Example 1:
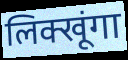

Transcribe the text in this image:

लिक्खूंगा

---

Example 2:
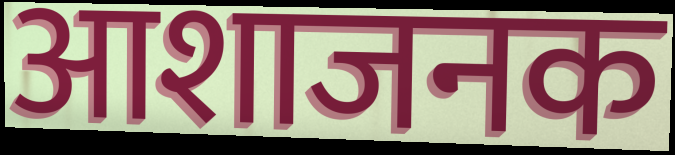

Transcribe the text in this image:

आशाजनक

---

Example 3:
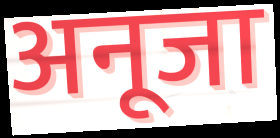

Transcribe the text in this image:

अनूजा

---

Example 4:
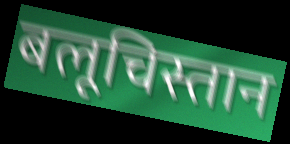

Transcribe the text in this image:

बलूचिस्‍तान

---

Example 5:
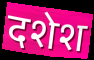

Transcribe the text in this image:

दशेश